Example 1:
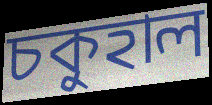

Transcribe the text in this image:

চকুহাল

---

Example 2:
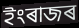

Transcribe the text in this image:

ইংৰাজৰ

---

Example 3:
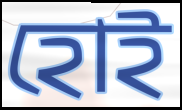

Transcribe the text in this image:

হোই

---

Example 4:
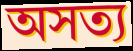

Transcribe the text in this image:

অসত্য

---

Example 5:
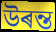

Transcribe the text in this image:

উৰন্ত